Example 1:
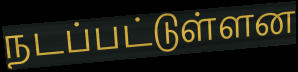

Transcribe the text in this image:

நடப்பட்டுள்ளன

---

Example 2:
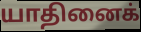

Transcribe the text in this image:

யாதினைக்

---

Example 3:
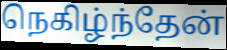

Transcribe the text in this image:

நெகிழ்ந்தேன்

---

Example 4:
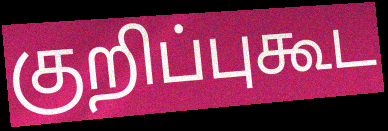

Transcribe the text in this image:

குறிப்புகூட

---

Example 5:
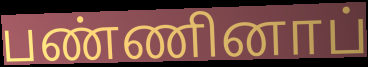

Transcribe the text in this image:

பண்ணினாப்